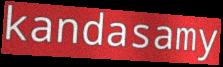
kandasamy